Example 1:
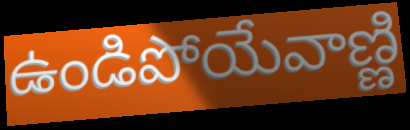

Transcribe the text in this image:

ఉండిపోయేవాణ్ణి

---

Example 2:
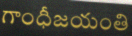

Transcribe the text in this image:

గాంధీజయంతి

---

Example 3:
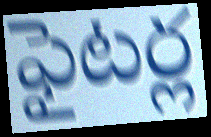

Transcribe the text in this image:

ఫైటర్ల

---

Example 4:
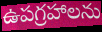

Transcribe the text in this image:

ఉపగ్రహాలను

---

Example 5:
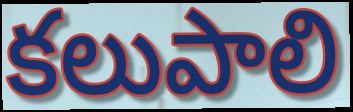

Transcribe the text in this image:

కలుపాలి